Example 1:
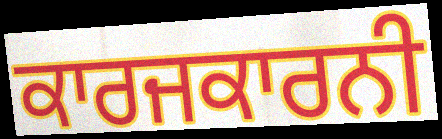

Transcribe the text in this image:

ਕਾਰਜਕਾਰਨੀ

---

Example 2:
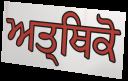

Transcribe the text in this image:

ਅਤ੍ਥਿਕੋ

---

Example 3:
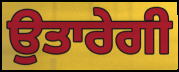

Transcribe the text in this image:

ਉਤਾਰੇਗੀ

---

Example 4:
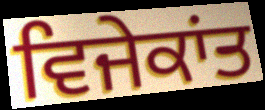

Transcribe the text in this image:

ਵਿਜੇਕਾਂਤ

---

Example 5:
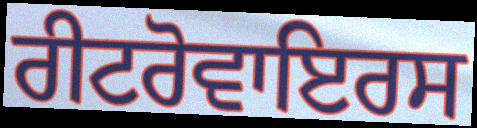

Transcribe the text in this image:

ਰੀਟਰੋਵਾਇਰਸ